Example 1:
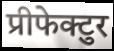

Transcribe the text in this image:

प्रीफेक्टुर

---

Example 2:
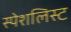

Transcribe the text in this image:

स्पेशलिस्ट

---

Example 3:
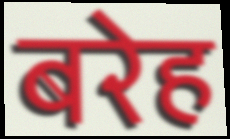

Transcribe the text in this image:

बरेह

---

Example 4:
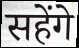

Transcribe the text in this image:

सहेंगे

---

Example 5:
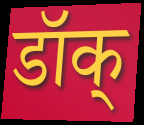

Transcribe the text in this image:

डॉक्